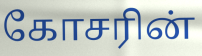
கோசரின்